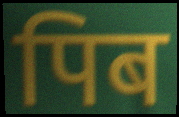
पिब